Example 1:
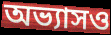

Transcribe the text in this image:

অভ্যাসও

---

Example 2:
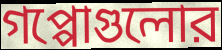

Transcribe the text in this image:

গপ্পোগুলোর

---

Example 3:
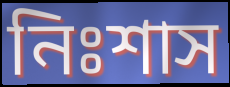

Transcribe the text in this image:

নিঃশাস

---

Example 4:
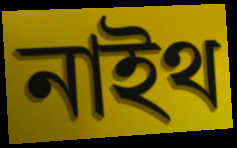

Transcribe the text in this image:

নাইথ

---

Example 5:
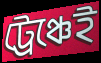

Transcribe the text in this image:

ট্রেঞ্চেই